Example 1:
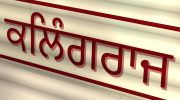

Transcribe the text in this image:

ਕਲਿੰਗਰਾਜ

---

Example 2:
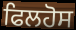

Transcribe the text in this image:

ਫਿਲਹੋਸ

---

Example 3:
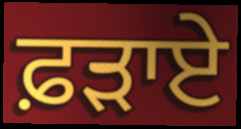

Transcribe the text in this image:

ਫ਼ੜਾਏ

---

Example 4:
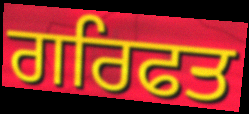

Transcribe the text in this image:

ਗਰਿਫਤ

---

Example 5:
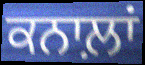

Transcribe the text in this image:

ਕਨਾਲ਼ਾਂ